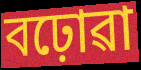
বঢ়োৱা